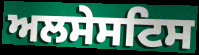
ਅਲਸੇਸਟਿਸ